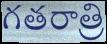
గతరాత్రి